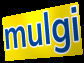
mulgi